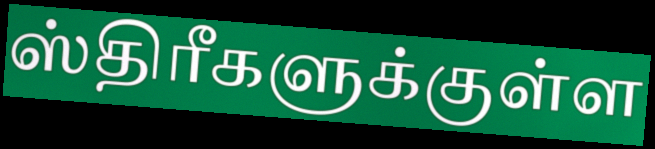
ஸ்திரீகளுக்குள்ள